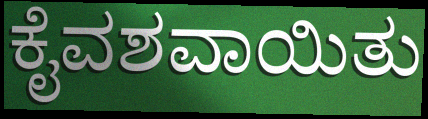
ಕೈವಶವಾಯಿತು